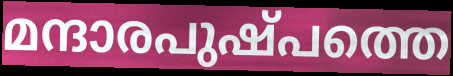
മന്ദാരപുഷ്പത്തെ